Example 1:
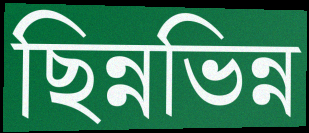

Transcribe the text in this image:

ছিন্নভিন্ন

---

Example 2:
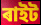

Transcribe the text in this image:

ৰাইট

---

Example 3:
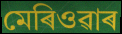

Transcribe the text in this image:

মেৰিওৱাৰ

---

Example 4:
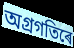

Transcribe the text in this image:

অগ্ৰগতিৰে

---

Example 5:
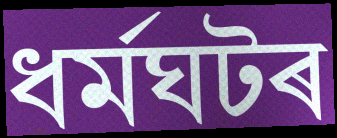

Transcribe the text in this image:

ধৰ্মঘটৰ